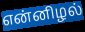
என்னிழல்